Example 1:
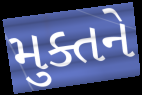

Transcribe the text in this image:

મુક્તને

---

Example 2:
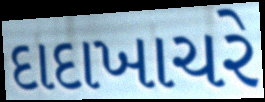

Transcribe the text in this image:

દાદાખાચરે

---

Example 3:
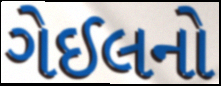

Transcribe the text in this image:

ગેઈલનો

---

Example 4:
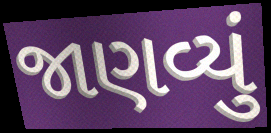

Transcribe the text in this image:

જાણવ્યું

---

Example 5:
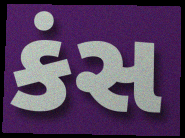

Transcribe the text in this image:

કંસ